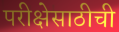
परीक्षेसाठीची